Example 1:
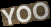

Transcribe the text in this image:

YOO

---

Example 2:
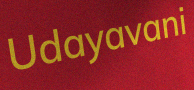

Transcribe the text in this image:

Udayavani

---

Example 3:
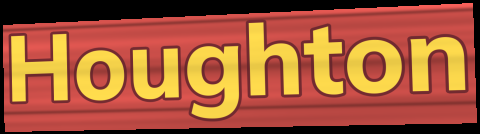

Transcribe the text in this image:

Houghton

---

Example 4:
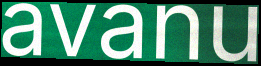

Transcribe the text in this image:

avanu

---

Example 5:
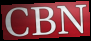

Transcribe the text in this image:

CBN